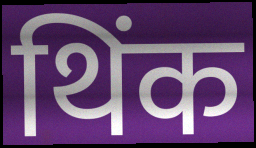
थिंक